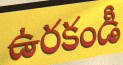
ఉరకండీ